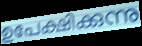
ഉപേക്ഷിക്കുന്നു